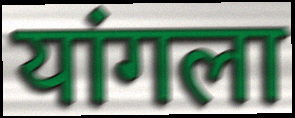
यांगला